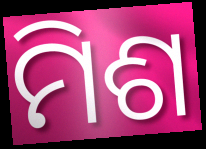
ମିଶ